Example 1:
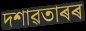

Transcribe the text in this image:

দশাৱতাৰৰ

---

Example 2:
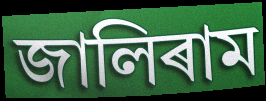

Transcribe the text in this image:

জালিৰাম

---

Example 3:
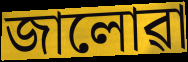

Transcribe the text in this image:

জালোৱা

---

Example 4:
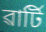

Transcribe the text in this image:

ৱাৰ্টি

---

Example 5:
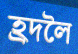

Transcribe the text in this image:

হ্ৰদলৈ